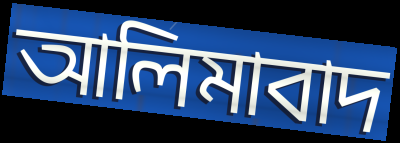
আলিমাবাদ